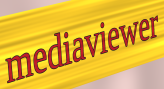
mediaviewer